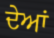
ਦੇਆਂ